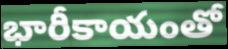
భారీకాయంతో